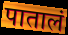
पातालं